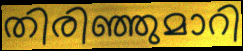
തിരിഞ്ഞുമാറി